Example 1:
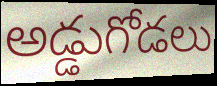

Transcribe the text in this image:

అడ్డుగోడలు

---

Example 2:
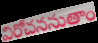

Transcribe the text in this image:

విరోచనసుతాం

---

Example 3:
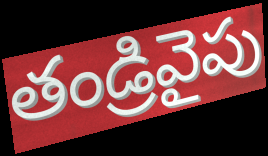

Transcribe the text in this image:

తండ్రివైపు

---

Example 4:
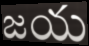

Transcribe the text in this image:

జయ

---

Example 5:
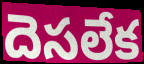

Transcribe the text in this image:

దెసలేక